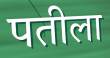
पतीला